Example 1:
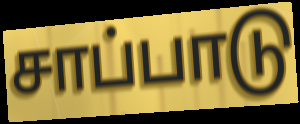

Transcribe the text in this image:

சாப்பாடு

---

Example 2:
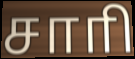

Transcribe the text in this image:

சாரி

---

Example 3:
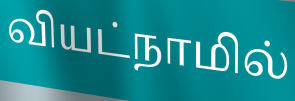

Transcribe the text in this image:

வியட்நாமில்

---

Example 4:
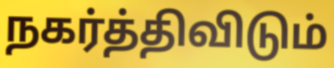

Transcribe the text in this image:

நகர்த்திவிடும்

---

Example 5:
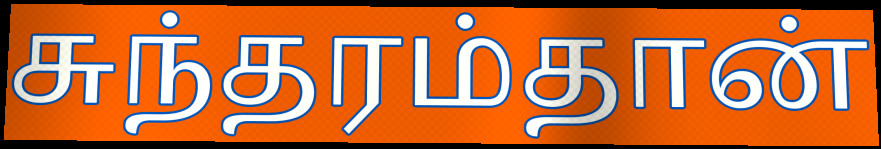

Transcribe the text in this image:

சுந்தரம்தான்